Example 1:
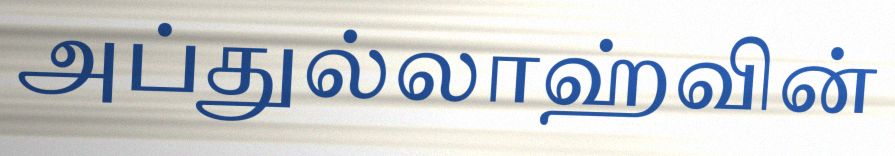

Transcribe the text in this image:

அப்துல்லாஹ்வின்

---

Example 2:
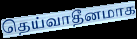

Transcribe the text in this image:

தெய்வாதீனமாக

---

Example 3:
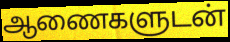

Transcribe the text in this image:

ஆணைகளுடன்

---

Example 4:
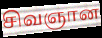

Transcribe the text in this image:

சிவஞான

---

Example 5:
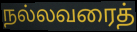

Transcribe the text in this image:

நல்லவரைத்